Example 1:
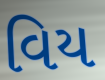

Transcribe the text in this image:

વિય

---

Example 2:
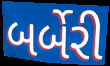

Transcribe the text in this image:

બર્બેરી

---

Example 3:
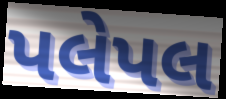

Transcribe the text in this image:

પલેપલ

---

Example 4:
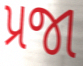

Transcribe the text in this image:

પ્રજા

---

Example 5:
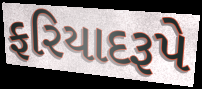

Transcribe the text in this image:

ફરિયાદરૂપે